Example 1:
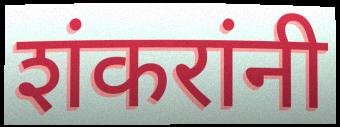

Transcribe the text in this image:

शंकरांनी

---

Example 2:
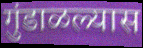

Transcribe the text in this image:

गुंडाळल्यास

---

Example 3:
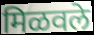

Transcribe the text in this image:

मिळवले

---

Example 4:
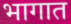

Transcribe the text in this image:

भागात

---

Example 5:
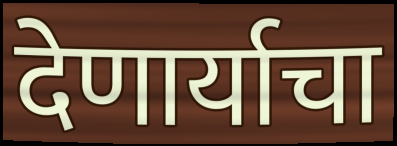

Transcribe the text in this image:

देणार्याचा